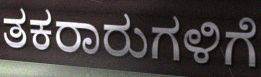
ತಕರಾರುಗಳಿಗೆ